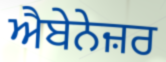
ਐਬੇਨੇਜ਼ਰ